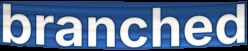
branched